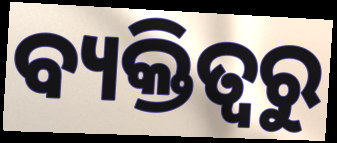
ବ୍ୟକ୍ତିତ୍ଵରୁ